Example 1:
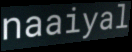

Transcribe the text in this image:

naaiyal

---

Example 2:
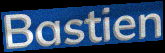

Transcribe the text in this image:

Bastien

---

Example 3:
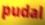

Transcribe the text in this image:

pudal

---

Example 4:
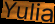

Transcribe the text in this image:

Yulia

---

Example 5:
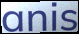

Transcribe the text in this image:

anis